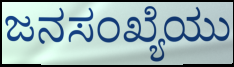
ಜನಸಂಖ್ಯೆಯು